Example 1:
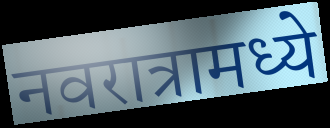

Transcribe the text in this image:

नवरात्रामध्ये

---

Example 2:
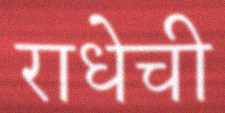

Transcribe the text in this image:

राधेची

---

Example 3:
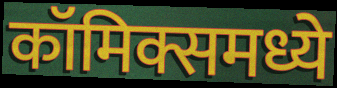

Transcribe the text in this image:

कॉमिक्समध्ये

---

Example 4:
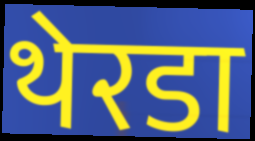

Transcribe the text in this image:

थेरडा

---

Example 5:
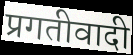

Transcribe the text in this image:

प्रगतीवादी